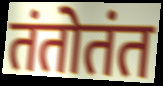
तंतोतंत